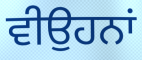
ਵੀਉਹਨਾਂ